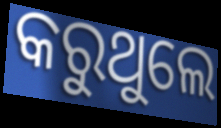
କରୁଥୁଲେ